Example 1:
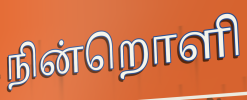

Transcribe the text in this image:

நின்றொளி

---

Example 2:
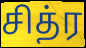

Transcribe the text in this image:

சித்ர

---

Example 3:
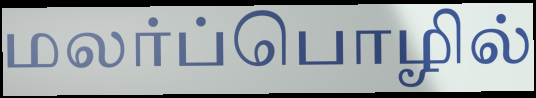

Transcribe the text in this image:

மலர்ப்பொழில்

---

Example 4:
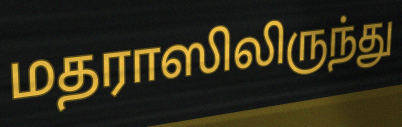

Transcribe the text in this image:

மதராஸிலிருந்து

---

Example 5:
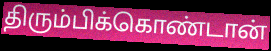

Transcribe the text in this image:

திரும்பிக்கொண்டான்